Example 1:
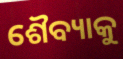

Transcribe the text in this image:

ଶୈବ୍ୟାକୁ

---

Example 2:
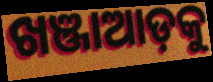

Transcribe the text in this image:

ଖଞ୍ଜାଆଡ଼କୁ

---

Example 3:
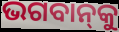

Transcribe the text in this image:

ଭଗବାନ୍‌କୁ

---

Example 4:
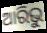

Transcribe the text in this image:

ଆରିଭୁ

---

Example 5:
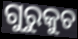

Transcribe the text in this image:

ଗୁରୁକୁଚ